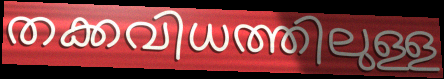
തക്കവിധത്തിലുള്ള